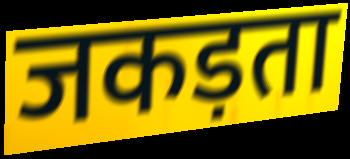
जकड़ता